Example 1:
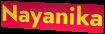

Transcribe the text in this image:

Nayanika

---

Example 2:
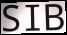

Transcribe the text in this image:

SIB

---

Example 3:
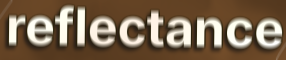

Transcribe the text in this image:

reflectance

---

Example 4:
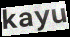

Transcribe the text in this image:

kayu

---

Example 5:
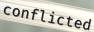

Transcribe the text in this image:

conflicted